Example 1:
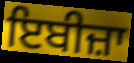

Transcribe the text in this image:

ਇਬੀਜ਼ਾ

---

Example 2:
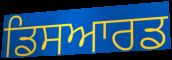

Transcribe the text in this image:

ਡਿਸਆਰਡ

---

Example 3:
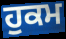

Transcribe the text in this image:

ਹੁਕਮ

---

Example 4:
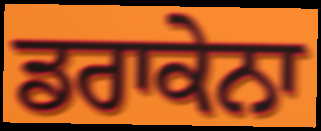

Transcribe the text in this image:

ਡਰਾਕੇਨਾ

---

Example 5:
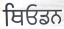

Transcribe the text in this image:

ਥਿਓਡਨ